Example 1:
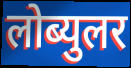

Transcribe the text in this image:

लोब्युलर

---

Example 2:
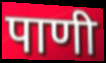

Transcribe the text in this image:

पाणी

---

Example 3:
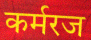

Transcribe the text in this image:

कर्मरज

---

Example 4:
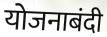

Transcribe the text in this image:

योजनाबंदी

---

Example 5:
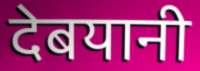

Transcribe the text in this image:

देबयानी